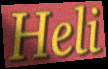
Heli